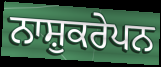
ਨਾਸ਼ੁਕਰੇਪਨ